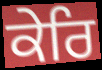
ਕੇਰਿ